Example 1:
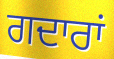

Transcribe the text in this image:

ਗਦਾਰਾਂ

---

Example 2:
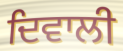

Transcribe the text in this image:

ਦਿਵਾਲੀ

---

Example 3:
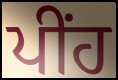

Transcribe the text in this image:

ਪੀਂਹ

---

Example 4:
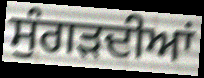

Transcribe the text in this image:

ਸੁੰਗੜਦੀਆਂ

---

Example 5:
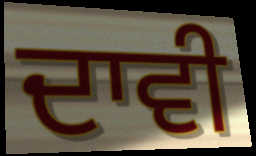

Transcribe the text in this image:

ਦਾਵੀ